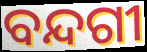
ବନ୍ଦଗୀ